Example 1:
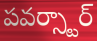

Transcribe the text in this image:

పవర్స్టార్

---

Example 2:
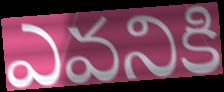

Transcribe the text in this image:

ఎవనికి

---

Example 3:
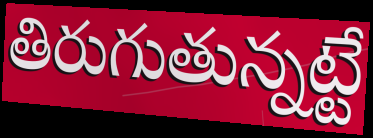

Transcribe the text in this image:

తిరుగుతున్నట్టే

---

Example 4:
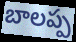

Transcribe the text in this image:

బాలప్ప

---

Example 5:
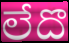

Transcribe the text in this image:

లేదొ